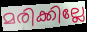
മരിക്കില്ലേ